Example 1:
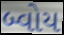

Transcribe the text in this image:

બ્વોય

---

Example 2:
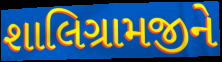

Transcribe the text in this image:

શાલિગ્રામજીને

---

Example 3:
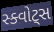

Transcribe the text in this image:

સ્ક્વોટ્સ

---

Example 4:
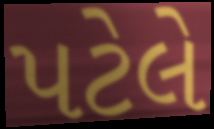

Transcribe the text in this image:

પટેલે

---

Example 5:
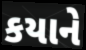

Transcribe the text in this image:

કયાને